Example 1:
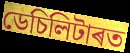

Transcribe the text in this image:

ডেচিলিটাৰত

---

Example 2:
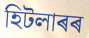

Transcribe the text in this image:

হিটলাৰৰ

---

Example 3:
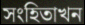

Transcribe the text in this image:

সংহিতাখন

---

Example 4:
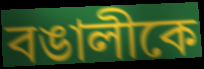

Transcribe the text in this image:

বঙালীকে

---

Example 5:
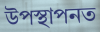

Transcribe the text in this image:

উপস্থাপনত